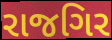
રાજગિર